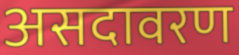
असदावरण